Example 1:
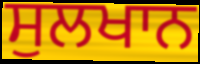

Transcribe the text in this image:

ਸੁਲਖਾਨ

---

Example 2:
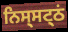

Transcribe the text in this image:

ਨਿਸ੍ਸਟ੍ਠਂ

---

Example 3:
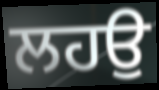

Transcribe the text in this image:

ਲਹਉ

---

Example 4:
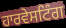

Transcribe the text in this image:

ਹਾਰਵੇਸਟਿੰਗ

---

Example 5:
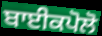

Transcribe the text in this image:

ਬਾਈਕਪੋਲੋ